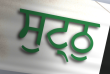
ਸੁਟ੍ਠੁ